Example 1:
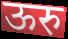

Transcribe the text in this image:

ऊरु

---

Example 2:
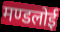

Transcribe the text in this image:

मण्डलोई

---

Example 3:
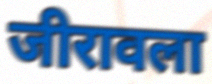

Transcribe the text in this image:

जीरावला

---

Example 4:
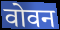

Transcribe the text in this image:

वोवन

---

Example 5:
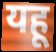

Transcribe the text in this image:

यहू